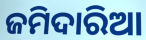
ଜମିଦାରିଆ